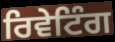
ਰਿਵੇਟਿੰਗ